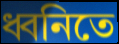
ধ্বনিতে